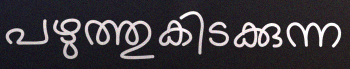
പഴുത്തുകിടക്കുന്ന